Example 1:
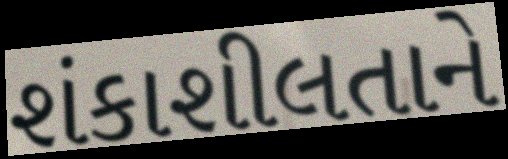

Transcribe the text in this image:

શંકાશીલતાને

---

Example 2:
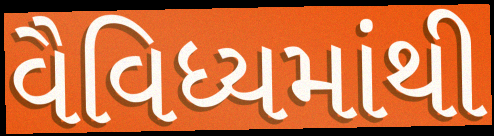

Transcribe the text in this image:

વૈવિધ્યમાંથી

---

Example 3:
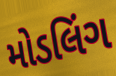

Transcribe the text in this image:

મોડલિંગ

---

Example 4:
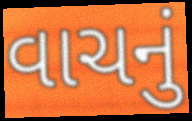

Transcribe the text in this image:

વાચનું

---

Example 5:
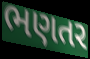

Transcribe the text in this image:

ભણતર